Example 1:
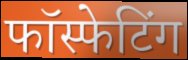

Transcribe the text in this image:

फॉस्फेटिंग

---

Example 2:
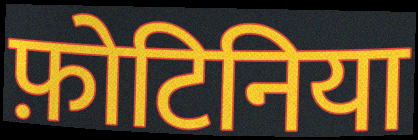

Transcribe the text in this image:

फ़ोटिनिया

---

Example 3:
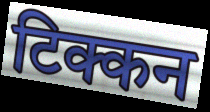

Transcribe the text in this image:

टिक्कन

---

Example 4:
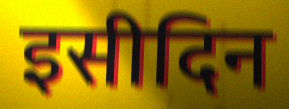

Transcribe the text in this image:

इसीदिन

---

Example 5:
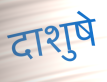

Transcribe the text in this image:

दाशुषे